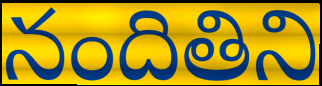
నందితిని